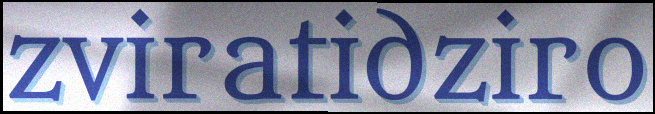
zviratidziro